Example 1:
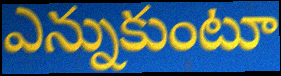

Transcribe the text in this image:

ఎన్నుకుంటూ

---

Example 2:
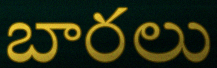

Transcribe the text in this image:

బారలు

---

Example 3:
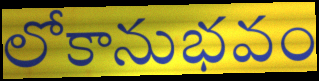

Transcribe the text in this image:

లోకానుభవం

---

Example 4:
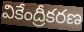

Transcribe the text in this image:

వికేంద్రీకరణ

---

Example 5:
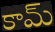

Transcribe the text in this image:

కామ్